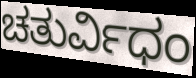
ಚತುರ್ವಿಧಂ